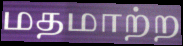
மதமாற்ற